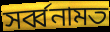
সৰ্ব্বনামত